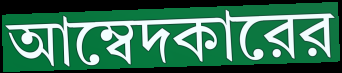
আম্বেদকারের